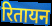
रितायन